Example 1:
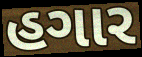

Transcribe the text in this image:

હગાર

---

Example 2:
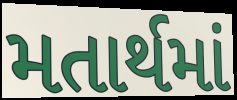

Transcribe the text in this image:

મતાર્થમાં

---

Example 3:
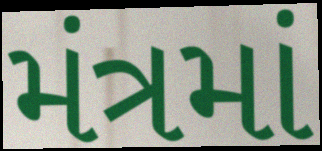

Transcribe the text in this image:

મંત્રમાં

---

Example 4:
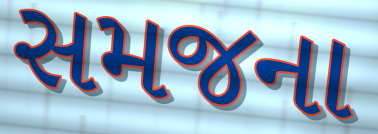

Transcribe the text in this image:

સમજના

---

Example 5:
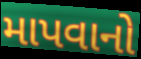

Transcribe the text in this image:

માપવાનો